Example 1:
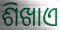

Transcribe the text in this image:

ଶିଖାଏ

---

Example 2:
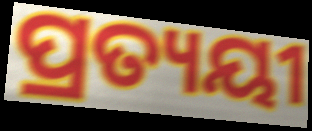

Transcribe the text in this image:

ପ୍ରତ୍ୟୟୀ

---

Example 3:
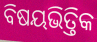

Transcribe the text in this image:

ବିଷୟଭିତ୍ତିକ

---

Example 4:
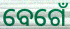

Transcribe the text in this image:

ବେଗେଁ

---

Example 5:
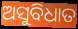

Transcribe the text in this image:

ଅସୁବିଧାତ